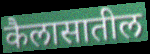
कैलासातील